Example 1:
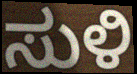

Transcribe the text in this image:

ಸುಳಿ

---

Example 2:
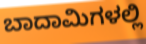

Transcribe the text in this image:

ಬಾದಾಮಿಗಳಲ್ಲಿ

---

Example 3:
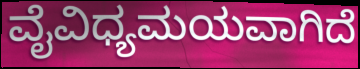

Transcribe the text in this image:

ವೈವಿಧ್ಯಮಯವಾಗಿದೆ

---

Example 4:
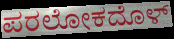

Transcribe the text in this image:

ಪರಲೋಕದೊಳ್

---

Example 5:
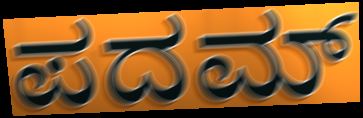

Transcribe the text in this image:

ಪದಮ್